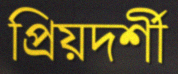
প্রিয়দর্শী